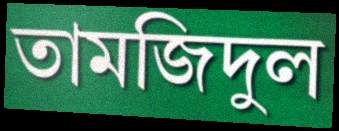
তামজিদুল